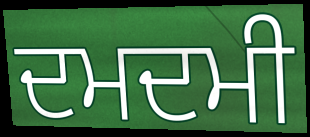
ਦਮਦਮੀ